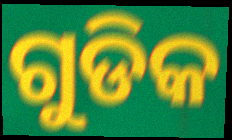
ଗୁଡିକ